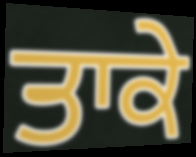
ਤਾਕੇ